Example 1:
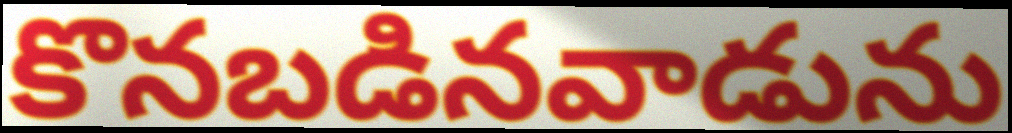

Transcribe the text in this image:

కొనబడినవాడును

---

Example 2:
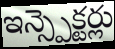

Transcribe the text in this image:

ఇన్స్పెక్టర్లు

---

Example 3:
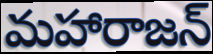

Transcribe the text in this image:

మహారాజన్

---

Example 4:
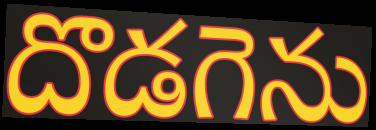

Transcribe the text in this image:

దొడగెను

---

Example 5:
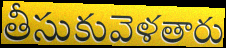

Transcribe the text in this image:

తీసుకువెళతారు